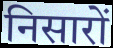
निसारों